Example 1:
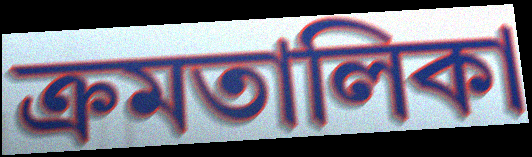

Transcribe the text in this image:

ক্রমতালিকা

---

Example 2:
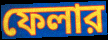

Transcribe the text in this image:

ফেলার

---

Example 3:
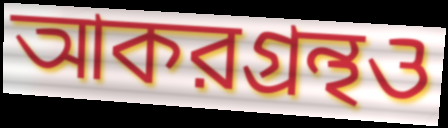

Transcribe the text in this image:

আকরগ্রন্থও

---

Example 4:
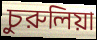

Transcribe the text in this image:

চুরুলিয়া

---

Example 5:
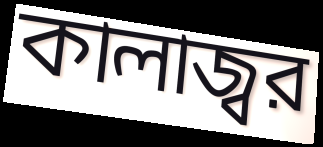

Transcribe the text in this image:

কালাজ্বর